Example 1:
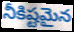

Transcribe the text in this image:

నీకిష్టమైన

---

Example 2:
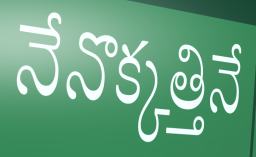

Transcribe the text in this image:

నేనొక్కత్తినే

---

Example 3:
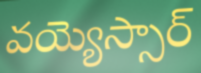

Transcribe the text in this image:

వయ్యెస్సార్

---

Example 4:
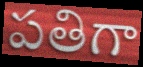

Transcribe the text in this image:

పతిగా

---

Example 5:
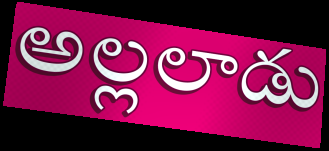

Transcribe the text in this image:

అల్లలాడు